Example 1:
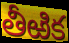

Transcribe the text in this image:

తీఱిక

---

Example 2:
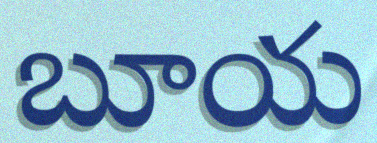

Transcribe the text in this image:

బూయ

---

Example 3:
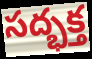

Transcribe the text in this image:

సద్భక్త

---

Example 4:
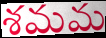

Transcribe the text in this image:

శమమ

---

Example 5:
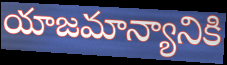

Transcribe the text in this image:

యాజమాన్యానికి